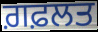
ਗ਼ਫ਼ਲਤ